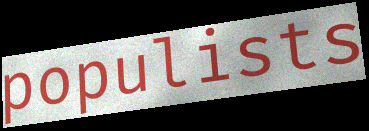
populists